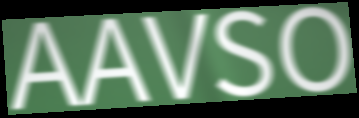
AAVSO